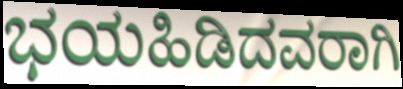
ಭಯಹಿಡಿದವರಾಗಿ